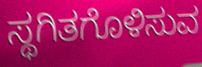
ಸ್ಥಗಿತಗೊಳಿಸುವ